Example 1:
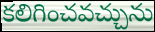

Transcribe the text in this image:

కలిగించవచ్చును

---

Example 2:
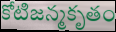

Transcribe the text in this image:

కోటిజన్మకృతం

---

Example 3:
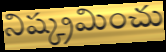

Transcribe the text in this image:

నిష్క్రమించు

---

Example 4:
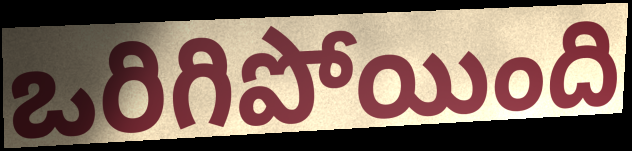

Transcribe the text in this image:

ఒరిగిపోయింది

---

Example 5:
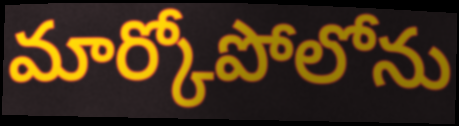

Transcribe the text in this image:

మార్కోపోలోను